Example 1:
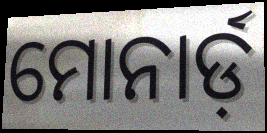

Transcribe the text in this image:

ମୋନାର୍ଡ଼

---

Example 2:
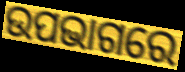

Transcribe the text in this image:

ଉପଭାଗରେ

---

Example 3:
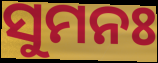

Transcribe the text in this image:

ସୁମନଃ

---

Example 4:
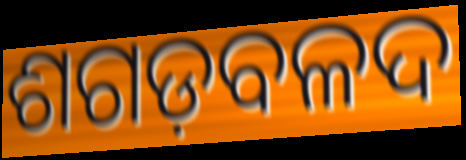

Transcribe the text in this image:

ଶଗଡ଼ବଳଦ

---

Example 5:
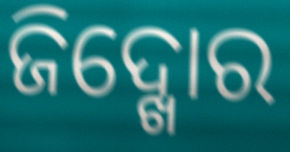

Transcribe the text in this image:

ଜିଦ୍ଖୋର